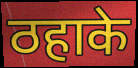
ठहाके